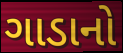
ગાડાનો